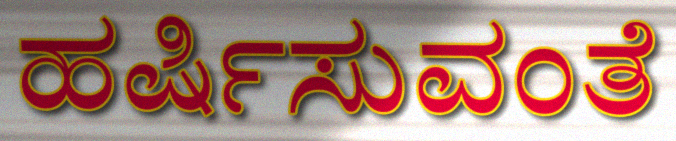
ಹರ್ಷಿಸುವಂತೆ